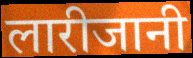
लारीजानी